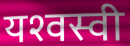
यश्वस्वी